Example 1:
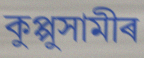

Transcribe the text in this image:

কুপ্পুসামীৰ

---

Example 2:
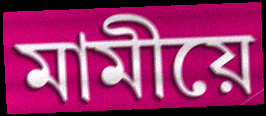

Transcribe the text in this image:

মামীয়ে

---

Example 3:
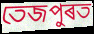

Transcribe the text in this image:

তেজপুৰত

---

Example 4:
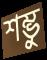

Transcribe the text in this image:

শম্ভু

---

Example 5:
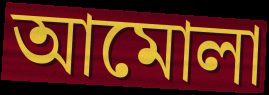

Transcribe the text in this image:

আমোলা